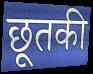
छूतकी